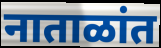
नाताळांत